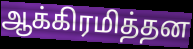
ஆக்கிரமித்தன